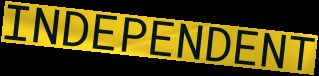
INDEPENDENT